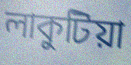
লাকুটিয়া